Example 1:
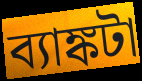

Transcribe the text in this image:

ব্যাঙ্কটা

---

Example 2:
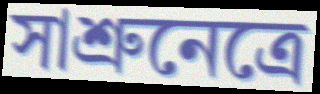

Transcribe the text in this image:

সাশ্রুনেত্রে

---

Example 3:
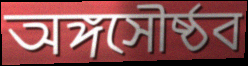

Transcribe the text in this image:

অঙ্গসৌষ্ঠব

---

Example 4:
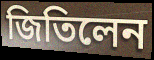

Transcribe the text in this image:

জিতিলেন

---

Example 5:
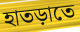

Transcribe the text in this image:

হাতড়াতে